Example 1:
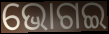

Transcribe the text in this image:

ଭୋଗଇ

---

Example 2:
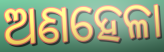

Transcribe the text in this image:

ଅଣହେଳା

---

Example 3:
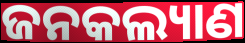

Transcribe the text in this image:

ଜନକଲ୍ୟାଣ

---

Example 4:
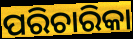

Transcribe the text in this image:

ପରିଚାରିକା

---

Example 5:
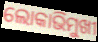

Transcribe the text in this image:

ଲୋକାଭିମୁଖୀ